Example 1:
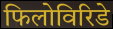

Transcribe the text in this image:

फिलोविरिडे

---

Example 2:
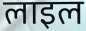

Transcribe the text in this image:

लाइल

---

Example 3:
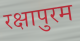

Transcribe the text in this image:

रक्षापुरम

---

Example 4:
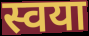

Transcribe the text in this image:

स्वया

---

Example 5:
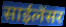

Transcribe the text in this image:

साईलेंसर